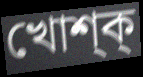
খোশ্ক্